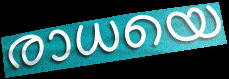
രാധയെ